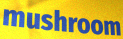
mushroom